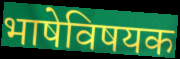
भाषेविषयक